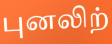
புனலிற்